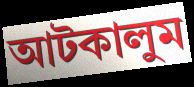
আটকালুম